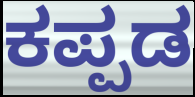
ಕಪ್ಪಡ